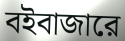
বইবাজারে